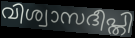
വിശ്വാസദീപ്തി